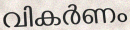
വികർണം